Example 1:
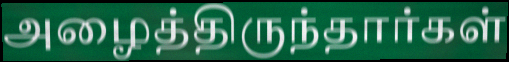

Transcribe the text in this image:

அழைத்திருந்தார்கள்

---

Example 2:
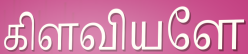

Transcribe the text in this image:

கிளவியளே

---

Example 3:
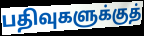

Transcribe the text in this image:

பதிவுகளுக்குத்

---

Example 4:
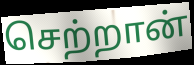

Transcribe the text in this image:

செற்றான்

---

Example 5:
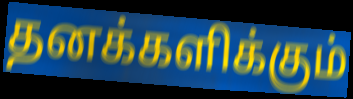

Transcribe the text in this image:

தனக்களிக்கும்